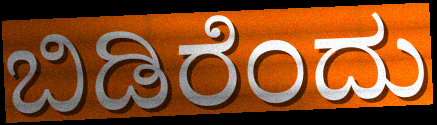
ಬಿಡಿರೆಂದು